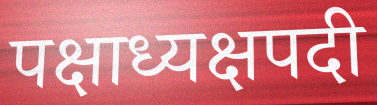
पक्षाध्यक्षपदी